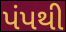
પંપથી